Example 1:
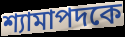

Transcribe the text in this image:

শ্যামাপদকে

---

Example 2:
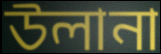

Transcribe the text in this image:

উলানা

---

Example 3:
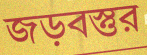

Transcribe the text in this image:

জড়বস্তুর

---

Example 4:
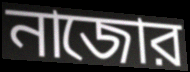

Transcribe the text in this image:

নাজোর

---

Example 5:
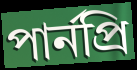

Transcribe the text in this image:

পার্নপ্রি